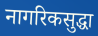
नागरिकसुद्धा